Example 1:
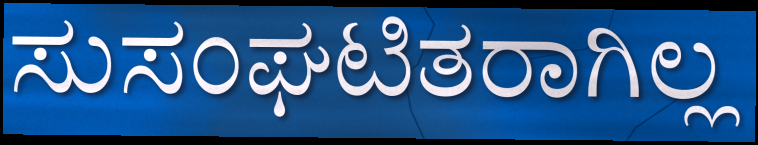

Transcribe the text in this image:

ಸುಸಂಘಟಿತರಾಗಿಲ್ಲ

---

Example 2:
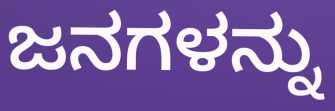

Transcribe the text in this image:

ಜನಗಳನ್ನು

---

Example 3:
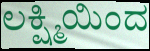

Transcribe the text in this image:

ಲಕ್ಷ್ಮಿಯಿಂದ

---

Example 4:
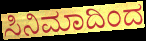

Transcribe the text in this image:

ಸಿನಿಮಾದಿಂದ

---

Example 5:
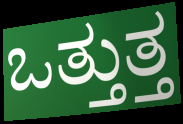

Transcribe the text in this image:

ಒತ್ತುತ್ತ